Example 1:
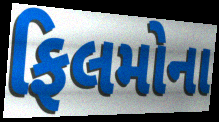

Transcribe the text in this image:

ફિલમોના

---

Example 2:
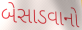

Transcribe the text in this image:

બેસાડવાનો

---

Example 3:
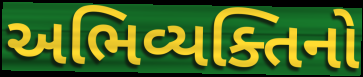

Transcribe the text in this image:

અભિવ્યક્તિનો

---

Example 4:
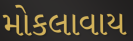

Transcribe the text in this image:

મોકલાવાય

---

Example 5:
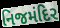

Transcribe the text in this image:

નિજમંદિર